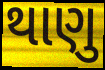
થાણુ